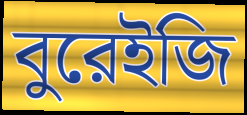
বুরেইজি